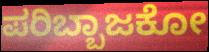
ಪರಿಬ್ಬಾಜಕೋ